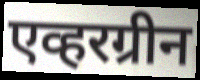
एव्हरग्रीन